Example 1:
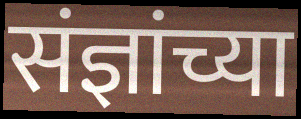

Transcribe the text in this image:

संज्ञांच्या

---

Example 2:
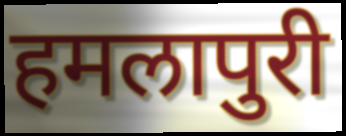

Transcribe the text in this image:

हमलापुरी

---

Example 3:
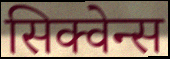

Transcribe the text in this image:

सिक्वेन्स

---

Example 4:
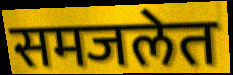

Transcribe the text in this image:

समजलेत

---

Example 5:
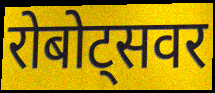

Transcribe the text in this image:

रोबोट्सवर